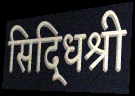
सिद्धिश्री